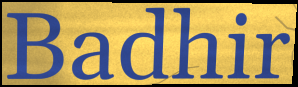
Badhir